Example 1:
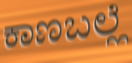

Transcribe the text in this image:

ಕಾಣಬಲ್ಲೆ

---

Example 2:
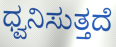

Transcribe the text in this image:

ಧ್ವನಿಸುತ್ತದೆ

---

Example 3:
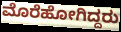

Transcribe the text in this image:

ಮೊರೆಹೋಗಿದ್ದರು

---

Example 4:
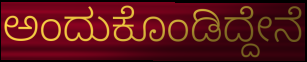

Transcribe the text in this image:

ಅಂದುಕೊಂಡಿದ್ದೇನೆ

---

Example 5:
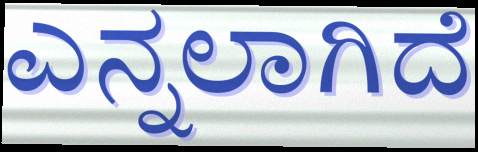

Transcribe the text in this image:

ಎನ್ನಲಾಗಿದೆ